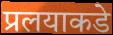
प्रलयाकडे